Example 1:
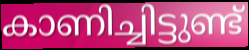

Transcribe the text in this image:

കാണിച്ചിട്ടുണ്ട്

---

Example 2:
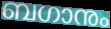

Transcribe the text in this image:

ബഗാനും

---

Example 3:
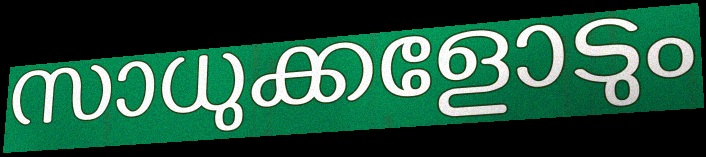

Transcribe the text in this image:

സാധുക്കളോടും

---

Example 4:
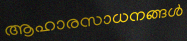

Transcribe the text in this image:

ആഹാരസാധനങ്ങൾ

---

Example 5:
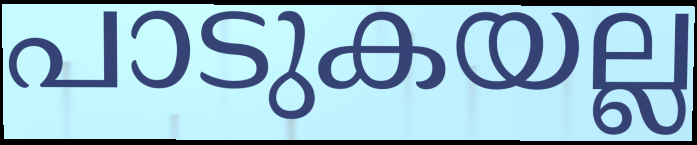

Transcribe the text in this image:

പാടുകയല്ല